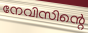
നേവിസിന്റെ